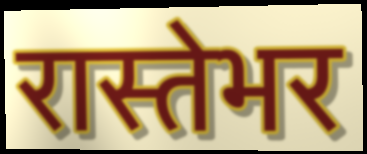
रास्तेभर